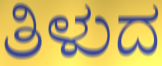
ತಿಳುದ